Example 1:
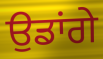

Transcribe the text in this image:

ਉਡਾਂਗੇ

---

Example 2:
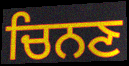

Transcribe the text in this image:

ਚਿਨਣ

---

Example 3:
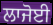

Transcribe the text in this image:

ਲਾਜੋਈ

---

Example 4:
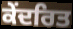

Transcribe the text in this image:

ਕੇਂਦਰਿਤ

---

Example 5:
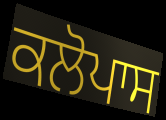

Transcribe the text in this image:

ਕਲੋਪਾਸ